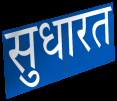
सुधारत